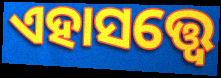
ଏହାସତ୍ତ୍ବେ